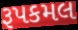
રૂપકમલ